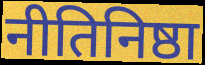
नीतिनिष्ठा